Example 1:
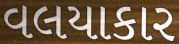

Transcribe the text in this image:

વલયાકાર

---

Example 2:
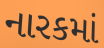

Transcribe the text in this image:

નારકમાં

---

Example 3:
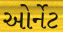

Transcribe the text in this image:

ઓર્નેટ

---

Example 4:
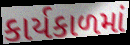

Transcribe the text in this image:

કાર્યકાળમાં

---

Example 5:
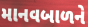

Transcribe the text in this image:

માનવબાળને